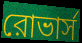
রোভার্স